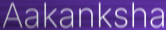
Aakanksha